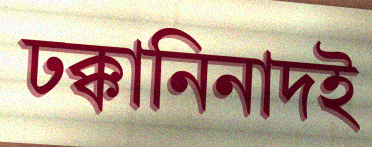
ঢক্কানিনাদই